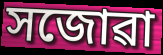
সজোৱা